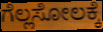
ಗೆಲ್ಲಸೋಲಕ್ಕೆ